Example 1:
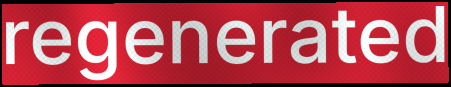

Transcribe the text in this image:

regenerated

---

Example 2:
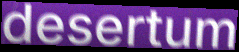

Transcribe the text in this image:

desertum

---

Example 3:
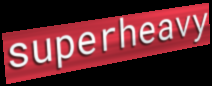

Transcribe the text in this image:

superheavy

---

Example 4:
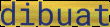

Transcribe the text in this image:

dibuat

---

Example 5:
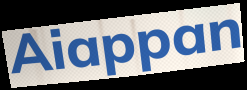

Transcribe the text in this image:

Aiappan